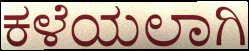
ಕಳೆಯಲಾಗಿ